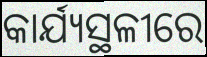
କାର୍ଯ୍ୟସ୍ଥଳୀରେ